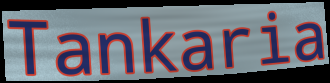
Tankaria